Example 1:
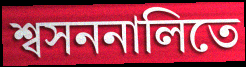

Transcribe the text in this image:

শ্বসননালিতে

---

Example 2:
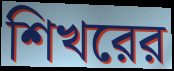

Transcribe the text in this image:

শিখরের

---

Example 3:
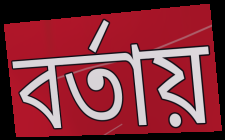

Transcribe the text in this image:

বর্তায়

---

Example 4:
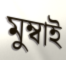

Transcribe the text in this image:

মুম্বাই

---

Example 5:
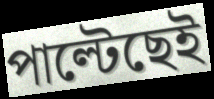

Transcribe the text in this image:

পাল্টেছেই